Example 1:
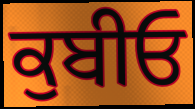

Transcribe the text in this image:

ਕੁਬੀਓ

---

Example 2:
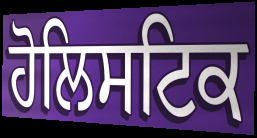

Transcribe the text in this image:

ਹੋਲਿਸਟਿਕ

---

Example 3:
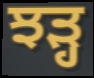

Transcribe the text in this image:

ਝੜ੍ਹ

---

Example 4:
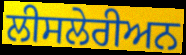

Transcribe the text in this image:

ਲੀਸਲੇਰੀਅਨ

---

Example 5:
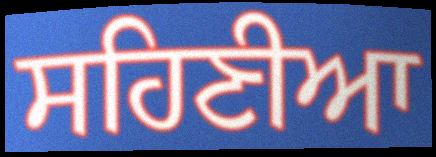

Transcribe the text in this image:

ਸਹਿਣੀਆ